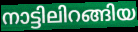
നാട്ടിലിറങ്ങിയ